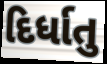
દિર્ધાતુ